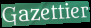
Gazettier